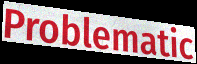
Problematic